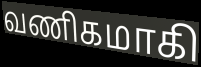
வணிகமாகி